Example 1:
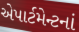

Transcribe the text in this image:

એપાર્ટમેન્ટનાં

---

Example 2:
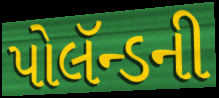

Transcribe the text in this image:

પોલૅન્ડની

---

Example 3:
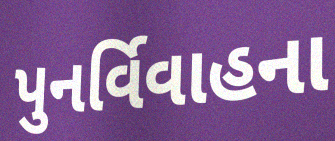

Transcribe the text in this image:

પુનર્વિવાહના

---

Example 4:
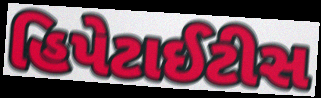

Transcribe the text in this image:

હિપેટાઈટીસ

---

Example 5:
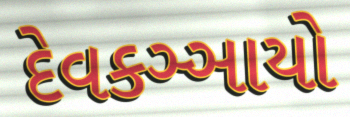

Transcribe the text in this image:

દેવકઞ્ઞાયો